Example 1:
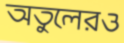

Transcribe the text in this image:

অতুলেরও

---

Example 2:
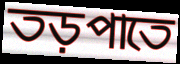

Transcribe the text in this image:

তড়পাতে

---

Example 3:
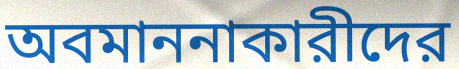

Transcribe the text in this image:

অবমাননাকারীদের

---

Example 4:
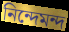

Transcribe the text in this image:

নিন্দেমন্দ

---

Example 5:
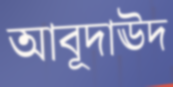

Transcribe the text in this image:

আবূদাঊদ